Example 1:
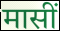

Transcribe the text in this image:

मासीं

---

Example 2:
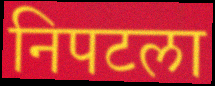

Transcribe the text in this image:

निपटला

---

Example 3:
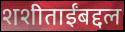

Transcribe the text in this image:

शशीताईंबद्दल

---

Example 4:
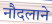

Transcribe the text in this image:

नौदलाने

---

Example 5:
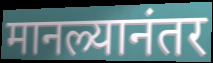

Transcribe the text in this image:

मानल्यानंतर